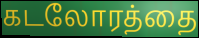
கடலோரத்தை